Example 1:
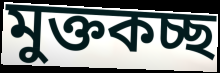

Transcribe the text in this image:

মুক্তকচ্ছ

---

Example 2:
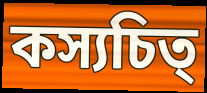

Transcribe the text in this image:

কস্যচিত্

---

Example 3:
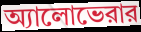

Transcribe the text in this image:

অ্যালোভেরার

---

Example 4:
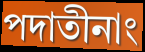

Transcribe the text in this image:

পদাতীনাং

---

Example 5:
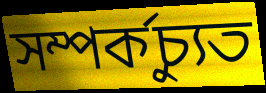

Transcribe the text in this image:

সম্পর্কচ্যুত